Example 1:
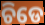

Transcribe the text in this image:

ଚିଡେ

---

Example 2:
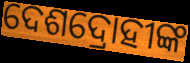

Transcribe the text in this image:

ଦେଶଦ୍ରୋହୀଙ୍କ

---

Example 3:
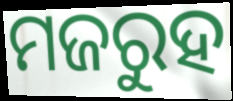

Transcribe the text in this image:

ମଜରୁହ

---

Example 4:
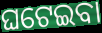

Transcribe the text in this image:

ଘଟେଇବା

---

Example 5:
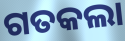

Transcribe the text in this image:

ଗତକଲା